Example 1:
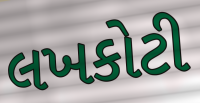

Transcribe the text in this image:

લખકોટી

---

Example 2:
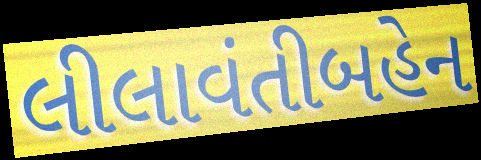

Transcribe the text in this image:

લીલાવંતીબહેન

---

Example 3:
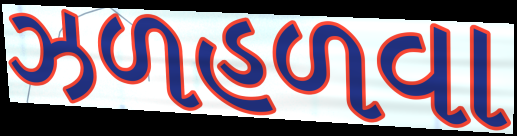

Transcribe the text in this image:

ઝળહળવા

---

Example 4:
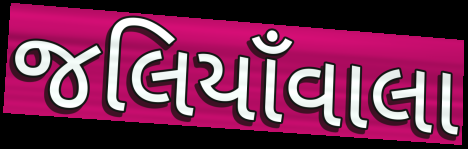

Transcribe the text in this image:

જલિયાઁવાલા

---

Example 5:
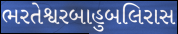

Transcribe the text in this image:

ભરતેશ્વરબાહુબલિરાસ